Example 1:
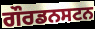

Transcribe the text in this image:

ਗੌਰਡਨਸਟਨ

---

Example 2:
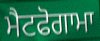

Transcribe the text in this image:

ਮੈਟਫੋਗਾਮਾ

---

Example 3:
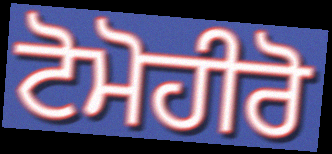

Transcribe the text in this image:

ਟੋਮੋਹੀਰੋ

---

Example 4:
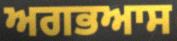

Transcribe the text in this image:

ਅਗਭਆਸ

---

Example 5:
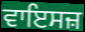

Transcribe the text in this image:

ਵਾਇਸਜ਼